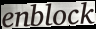
enblock